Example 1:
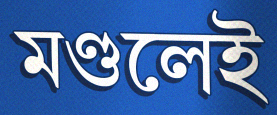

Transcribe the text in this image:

মণ্ডলেই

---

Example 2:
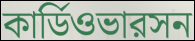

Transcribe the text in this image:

কার্ডিওভারসন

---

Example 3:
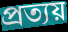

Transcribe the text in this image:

প্রত্যয়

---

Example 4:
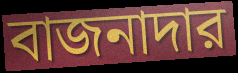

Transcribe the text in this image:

বাজনাদার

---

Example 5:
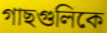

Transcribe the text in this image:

গাছগুলিকে